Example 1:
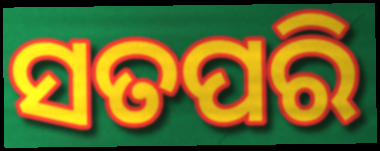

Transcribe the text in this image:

ସତପରି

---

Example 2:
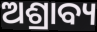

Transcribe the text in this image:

ଅଶ୍ରାବ୍ୟ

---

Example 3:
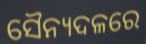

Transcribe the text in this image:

ସୈନ୍ୟଦଳରେ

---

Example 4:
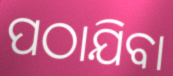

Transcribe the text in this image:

ପଠାଯିବା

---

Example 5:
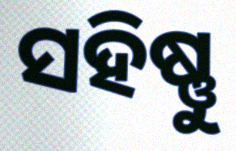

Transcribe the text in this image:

ସହିଷ୍ଣୁ